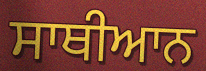
ਸਾਥੀਆਨ